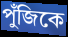
পুঁজিকে